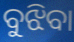
ବୁଝିବା